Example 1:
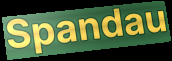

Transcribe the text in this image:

Spandau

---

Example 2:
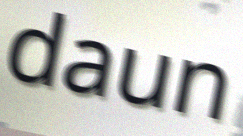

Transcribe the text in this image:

daun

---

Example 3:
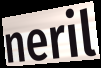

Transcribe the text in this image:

neril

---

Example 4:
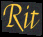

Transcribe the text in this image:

Rit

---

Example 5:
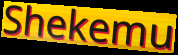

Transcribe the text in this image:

Shekemu